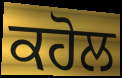
ਕਹੋਲ